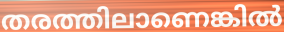
തരത്തിലാണെങ്കിൽ